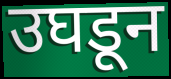
उघडून